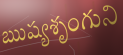
ఋష్యశృంగుని